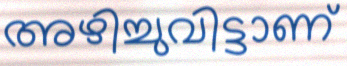
അഴിച്ചുവിട്ടാണ്